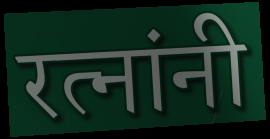
रत्नांनी